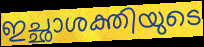
ഇച്ഛാശക്തിയുടെ